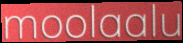
moolaalu